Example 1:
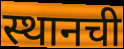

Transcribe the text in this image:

स्थानची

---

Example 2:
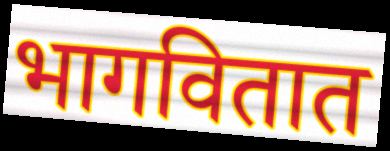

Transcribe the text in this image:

भागवितात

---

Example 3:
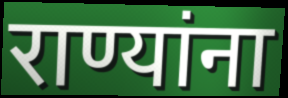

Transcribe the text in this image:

राण्यांना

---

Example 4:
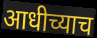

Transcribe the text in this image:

आधीच्याच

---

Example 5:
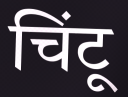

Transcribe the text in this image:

चिंटू